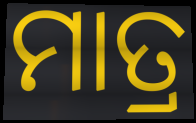
ମାତ୍ର